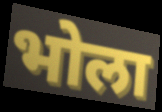
भोला